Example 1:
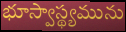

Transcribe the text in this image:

భూస్వాస్థ్యమును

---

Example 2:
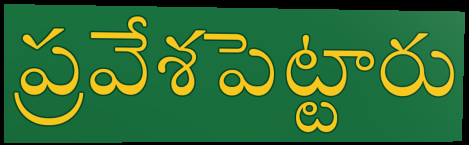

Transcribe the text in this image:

ప్రవేశపెట్టారు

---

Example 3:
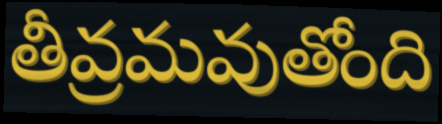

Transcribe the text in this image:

తీవ్రమవుతోంది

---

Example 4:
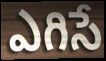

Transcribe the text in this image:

ఎగిసే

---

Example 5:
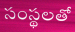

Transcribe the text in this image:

సంస్థలతో